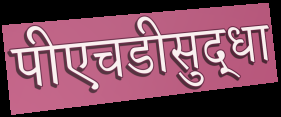
पीएचडीसुद्धा